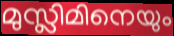
മുസ്ലിമിനെയും